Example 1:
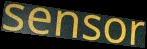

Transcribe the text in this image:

sensor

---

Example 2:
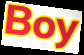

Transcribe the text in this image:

Boy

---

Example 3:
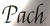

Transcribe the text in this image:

Pach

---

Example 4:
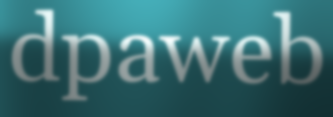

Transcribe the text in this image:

dpaweb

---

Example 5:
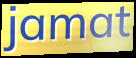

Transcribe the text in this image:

jamat